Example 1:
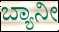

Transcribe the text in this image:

ಬ್ಯಾನೀ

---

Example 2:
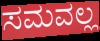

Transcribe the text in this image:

ಸಮವಲ್ಲ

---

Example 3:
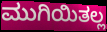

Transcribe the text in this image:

ಮುಗಿಯಿತಲ್ಲ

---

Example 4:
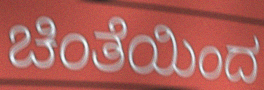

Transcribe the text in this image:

ಚಿಂತೆಯಿಂದ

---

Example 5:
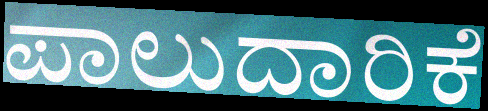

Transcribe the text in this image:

ಪಾಲುದಾರಿಕೆ